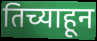
तिच्याहून